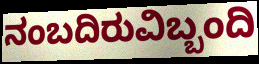
ನಂಬದಿರುವಿಬ್ಬಂದಿ